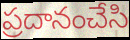
ప్రదానంచేసి